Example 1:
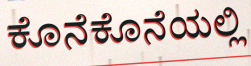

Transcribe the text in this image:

ಕೊನೆಕೊನೆಯಲ್ಲಿ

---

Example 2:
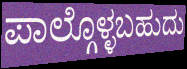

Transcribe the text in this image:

ಪಾಲ್ಗೊಳ್ಳಬಹುದು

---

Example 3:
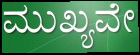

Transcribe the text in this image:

ಮುಖ್ಯವೇ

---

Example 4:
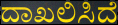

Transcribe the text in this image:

ದಾಖಲಿಸಿದೆ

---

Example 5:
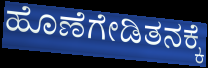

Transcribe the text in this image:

ಹೊಣೆಗೇಡಿತನಕ್ಕೆ